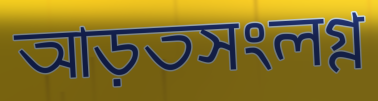
আড়তসংলগ্ন